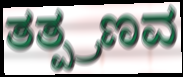
ತತ್ಪ್ರಣವ